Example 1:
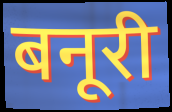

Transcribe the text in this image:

बनूरी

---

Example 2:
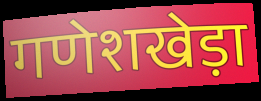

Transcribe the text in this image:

गणेशखेड़ा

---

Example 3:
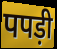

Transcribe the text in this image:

पपड़ी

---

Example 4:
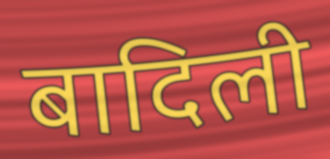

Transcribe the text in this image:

बादिली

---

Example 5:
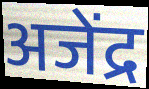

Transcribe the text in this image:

अजेंद्र